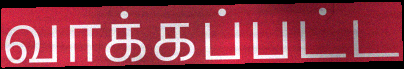
வாக்கப்பட்ட